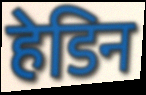
हेडिन